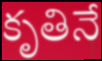
కృతినే